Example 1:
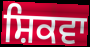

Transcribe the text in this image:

ਸ਼ਿਕਵਾ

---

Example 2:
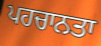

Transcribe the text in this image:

ਪਹਚਾਨਤਾ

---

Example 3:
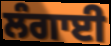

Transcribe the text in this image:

ਲੰਗਾਈ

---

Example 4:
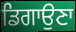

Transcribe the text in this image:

ਡਿਗਾਉਣਾ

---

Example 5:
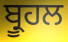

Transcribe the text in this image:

ਬ੍ਰੂਹਲ